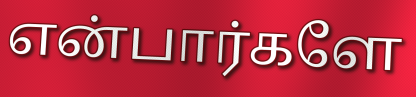
என்பார்களே